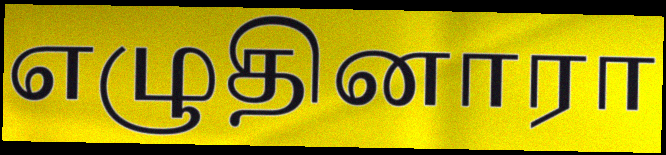
எழுதினாரா